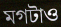
মগটাও